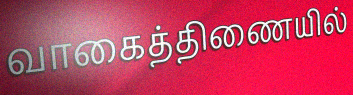
வாகைத்திணையில்